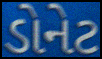
ડોનેટ